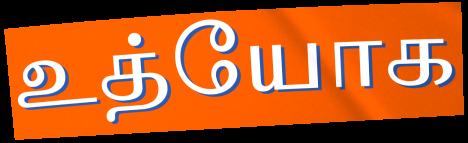
உத்யோக